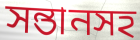
সন্তানসহ